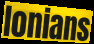
Ionians